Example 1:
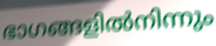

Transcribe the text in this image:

ഭാഗങ്ങളിൽനിന്നും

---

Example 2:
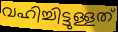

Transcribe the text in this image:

വഹിച്ചിട്ടുള്ളത്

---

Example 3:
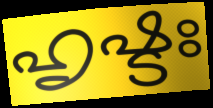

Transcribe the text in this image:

ഹൃഷ്ടഃ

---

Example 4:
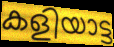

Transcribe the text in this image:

കളിയാട്ട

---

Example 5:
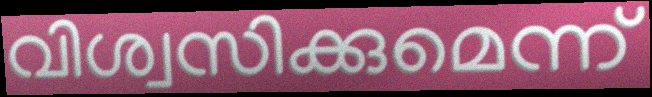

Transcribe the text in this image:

വിശ്വസിക്കുമെന്ന്